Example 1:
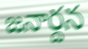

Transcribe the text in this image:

జనార్దన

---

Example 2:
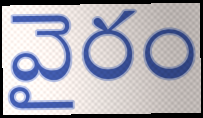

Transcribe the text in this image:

వైరం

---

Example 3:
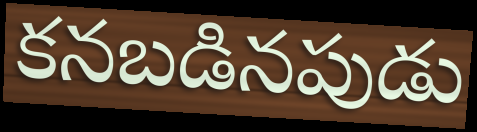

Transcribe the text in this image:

కనబడినపుడు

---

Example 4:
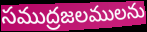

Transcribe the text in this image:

సముద్రజలములను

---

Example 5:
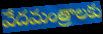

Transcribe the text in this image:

వేదమంత్రాలకు